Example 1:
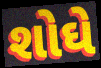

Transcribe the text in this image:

શોઘે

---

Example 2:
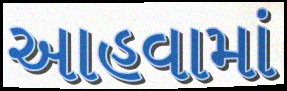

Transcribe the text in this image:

આહવામાં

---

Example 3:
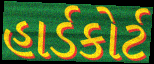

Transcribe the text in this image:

હાર્ડકોર્ટ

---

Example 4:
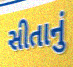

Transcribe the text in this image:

સીતાનું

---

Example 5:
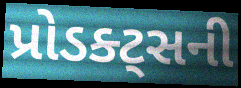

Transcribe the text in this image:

પ્રોડક્ટ્સની